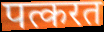
पत्करत